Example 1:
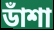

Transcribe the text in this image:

ডাঁশা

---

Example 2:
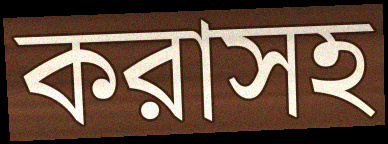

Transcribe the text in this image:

করাসহ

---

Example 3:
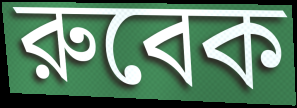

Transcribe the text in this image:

রুবেক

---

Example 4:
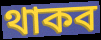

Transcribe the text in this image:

থাকব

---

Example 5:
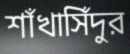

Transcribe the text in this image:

শাঁখাসিঁদুর